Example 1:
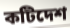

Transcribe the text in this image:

কটিদেশ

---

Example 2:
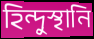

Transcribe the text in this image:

হিন্দুস্থানি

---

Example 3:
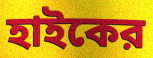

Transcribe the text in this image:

হাইকের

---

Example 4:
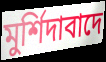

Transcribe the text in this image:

মুর্শিদাবাদে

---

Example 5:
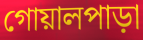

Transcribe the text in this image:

গোয়ালপাড়া